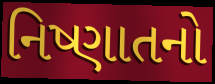
નિષ્ણાતનો